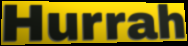
Hurrah